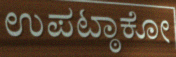
ಉಪಟ್ಠಾಕೋ